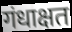
गंधाक्षत